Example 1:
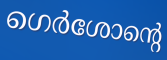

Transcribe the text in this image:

ഗെർശോന്റെ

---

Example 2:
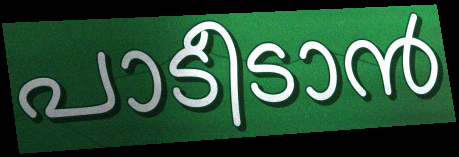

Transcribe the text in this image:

പാടീടാൻ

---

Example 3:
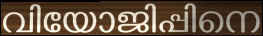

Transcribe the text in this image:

വിയോജിപ്പിനെ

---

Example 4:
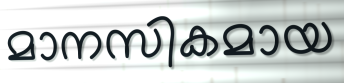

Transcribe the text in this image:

മാനസികമായ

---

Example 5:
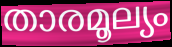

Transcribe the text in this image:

താരമൂല്യം